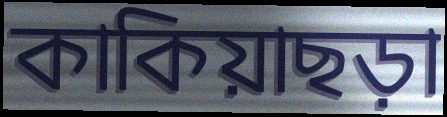
কাকিয়াছড়া